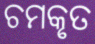
ଚମକୃତ